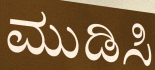
ಮುಡಿಸಿ